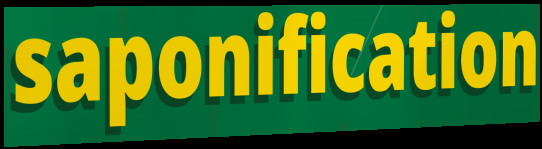
saponification